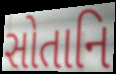
સોતાનિ